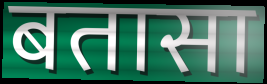
बतासा